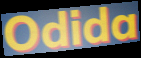
Odida